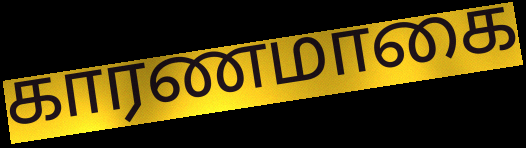
காரணமாகை